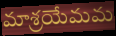
మాశ్రయేమమ